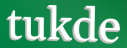
tukde